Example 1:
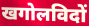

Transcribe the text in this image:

खगोलविदों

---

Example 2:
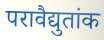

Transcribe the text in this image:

परावैद्युतांक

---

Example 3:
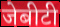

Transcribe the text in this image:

जेबीटी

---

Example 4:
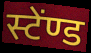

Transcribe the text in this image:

स्टेंण्ड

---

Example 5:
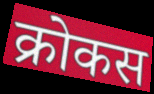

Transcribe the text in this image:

क्रोकस